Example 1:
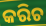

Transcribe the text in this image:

କରିଚ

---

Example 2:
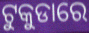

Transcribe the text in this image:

ଟୁକୁଡାରେ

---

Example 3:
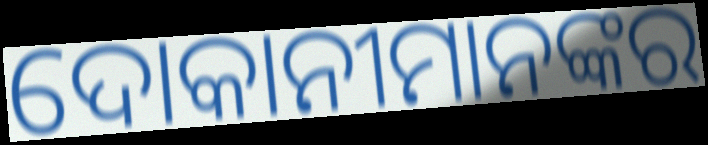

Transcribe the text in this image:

ଦୋକାନୀମାନଙ୍କର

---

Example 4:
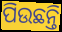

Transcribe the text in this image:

ପିଉଛନ୍ତି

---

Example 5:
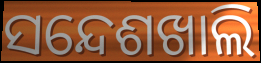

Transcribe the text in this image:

ସନ୍ଦେଶଖାଲି